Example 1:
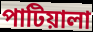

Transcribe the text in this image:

পাটিয়ালা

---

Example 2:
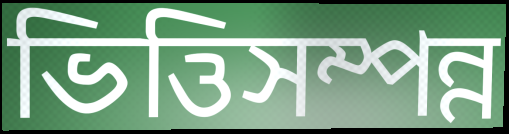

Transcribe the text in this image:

ভিত্তিসম্পন্ন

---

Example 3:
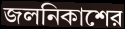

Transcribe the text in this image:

জলনিকাশের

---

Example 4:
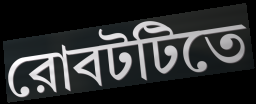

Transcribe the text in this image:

রোবটটিতে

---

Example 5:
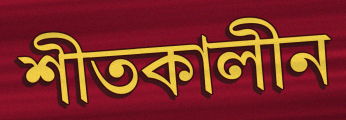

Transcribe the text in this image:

শীতকালীন